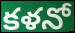
కళనో